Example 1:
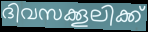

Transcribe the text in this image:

ദിവസക്കൂലിക്ക്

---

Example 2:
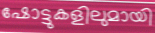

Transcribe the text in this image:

ഷോട്ടുകളിലുമായി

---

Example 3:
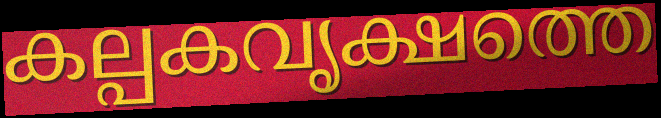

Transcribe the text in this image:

കല്പകവൃക്ഷത്തെ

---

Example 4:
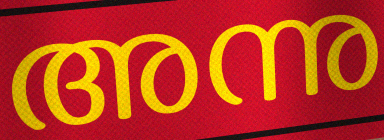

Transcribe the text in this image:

അന്നു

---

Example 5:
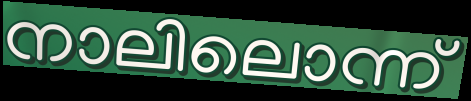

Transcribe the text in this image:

നാലിലൊന്ന്